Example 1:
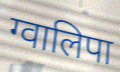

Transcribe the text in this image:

ग्वालिपा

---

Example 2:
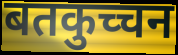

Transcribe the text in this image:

बतकुच्चन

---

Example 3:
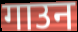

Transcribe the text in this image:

गाउन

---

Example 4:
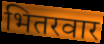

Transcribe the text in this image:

भितरवार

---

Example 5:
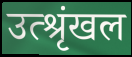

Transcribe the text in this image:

उत्श्रृंखल